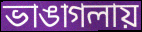
ভাঙাগলায়